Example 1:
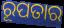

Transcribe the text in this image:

ରୂପତାର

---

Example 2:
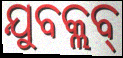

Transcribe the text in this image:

ଯୁବକ୍ଲବ୍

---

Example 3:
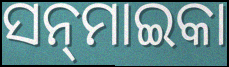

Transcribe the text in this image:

ସନ୍‌ମାଇକା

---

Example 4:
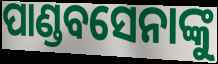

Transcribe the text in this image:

ପାଣ୍ଡବସେନାଙ୍କୁ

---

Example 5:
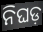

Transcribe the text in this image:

ନିଘଡ଼